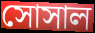
সোসাল